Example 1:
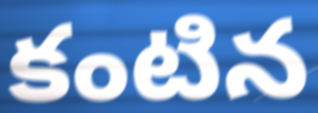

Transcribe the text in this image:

కంటిన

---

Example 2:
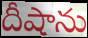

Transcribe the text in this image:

దీషాను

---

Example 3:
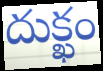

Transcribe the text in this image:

దుక్ఖం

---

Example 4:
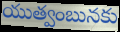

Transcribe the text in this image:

యుత్వంబునకు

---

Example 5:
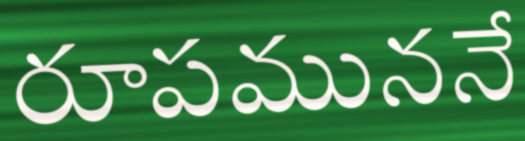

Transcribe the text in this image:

రూపముననే